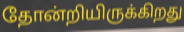
தோன்றியிருக்கிறது